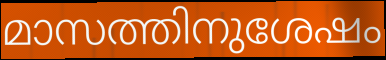
മാസത്തിനുശേഷം